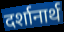
दर्शानार्थ